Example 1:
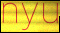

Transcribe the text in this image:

nyu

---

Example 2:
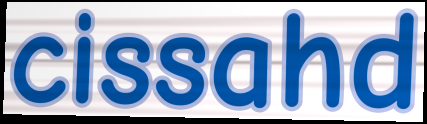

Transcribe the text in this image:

cissahd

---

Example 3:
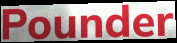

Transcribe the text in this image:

Pounder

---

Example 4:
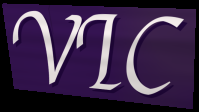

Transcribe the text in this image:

VIC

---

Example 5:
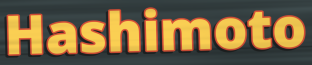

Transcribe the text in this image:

Hashimoto